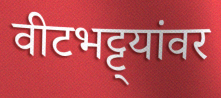
वीटभट्ट्यांवर